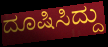
ದೂಷಿಸಿದ್ದು